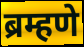
ब्रम्हणे